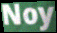
Noy